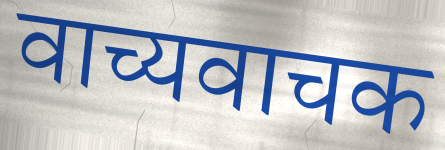
वाच्यवाचक